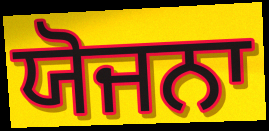
ਯੋਜਨਾ